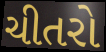
ચીતરો